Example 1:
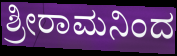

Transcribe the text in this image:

ಶ್ರೀರಾಮನಿಂದ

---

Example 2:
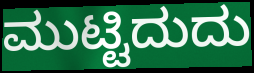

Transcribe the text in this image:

ಮುಟ್ಟಿದುದು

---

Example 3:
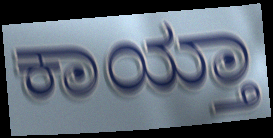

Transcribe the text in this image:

ಕಾಯ್ತಾ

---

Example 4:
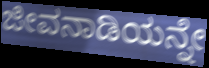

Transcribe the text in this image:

ಜೀವನಾಡಿಯನ್ನೇ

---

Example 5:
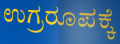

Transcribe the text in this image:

ಉಗ್ರರೂಪಕ್ಕೆ